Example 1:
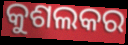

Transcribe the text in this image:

କୁଶଲକର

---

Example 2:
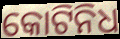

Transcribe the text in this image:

କୋଟିନିଧ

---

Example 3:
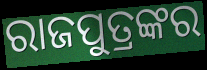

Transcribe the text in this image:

ରାଜପୁତ୍ରଙ୍କର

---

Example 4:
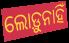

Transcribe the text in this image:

ଲୋଡ଼ୁନାହିଁ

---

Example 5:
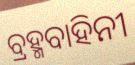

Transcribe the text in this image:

ବ୍ରହ୍ମବାହିନୀ